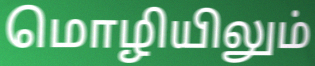
மொழியிலும்